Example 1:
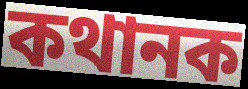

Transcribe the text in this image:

কথানক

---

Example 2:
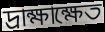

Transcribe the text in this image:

দ্রাক্ষাক্ষেত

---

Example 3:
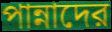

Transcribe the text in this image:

পান্নাদের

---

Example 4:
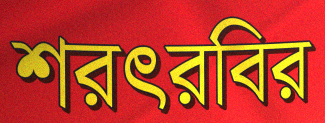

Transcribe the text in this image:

শরৎরবির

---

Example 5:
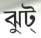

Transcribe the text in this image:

ঝুট্